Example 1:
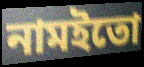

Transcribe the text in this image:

নামইতো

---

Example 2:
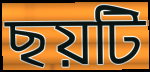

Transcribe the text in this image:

ছয়টি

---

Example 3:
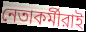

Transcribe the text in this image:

নেতাকর্মীরাই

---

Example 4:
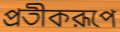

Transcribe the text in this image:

প্রতীকরূপে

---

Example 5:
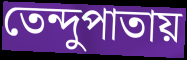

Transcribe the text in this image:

তেন্দুপাতায়